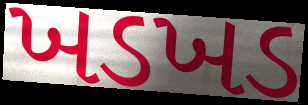
ખડખડ